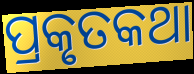
ପ୍ରକୃତକଥା